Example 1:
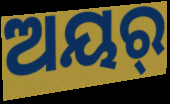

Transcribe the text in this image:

ଅୟର୍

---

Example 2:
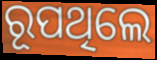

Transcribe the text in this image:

ରୂପଥିଲେ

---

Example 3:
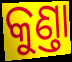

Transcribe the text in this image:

କୁଣ୍ତା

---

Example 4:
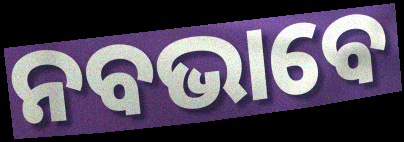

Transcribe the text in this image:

ନବଭାବେ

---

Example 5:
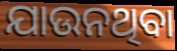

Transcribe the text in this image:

ଯାଉନଥିବା